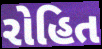
રોહિત